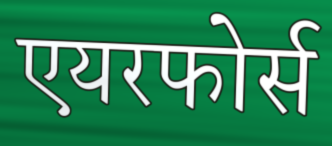
एयरफोर्स